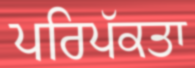
ਪਰਿਪੱਕਤਾ